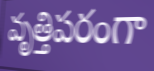
వృత్తిపరంగా